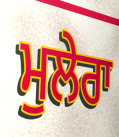
ਮੁਲੇਰਾ